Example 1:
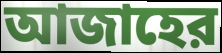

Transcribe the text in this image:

আজাহের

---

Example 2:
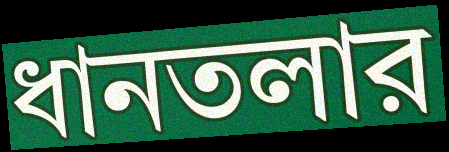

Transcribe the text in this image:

ধানতলার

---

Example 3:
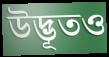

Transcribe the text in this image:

উদ্ভূতও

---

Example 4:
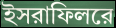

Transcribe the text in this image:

ইসরাফিলরে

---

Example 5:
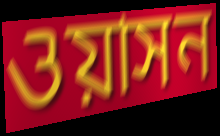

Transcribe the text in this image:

ওয়াসন